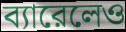
ব্যারেলেও